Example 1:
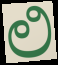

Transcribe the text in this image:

ಲಿ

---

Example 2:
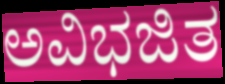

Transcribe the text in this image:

ಅವಿಭಜಿತ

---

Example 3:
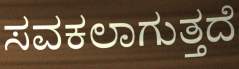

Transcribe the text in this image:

ಸವಕಲಾಗುತ್ತದೆ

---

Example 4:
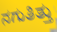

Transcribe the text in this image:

ನಗುತಿತ್ತು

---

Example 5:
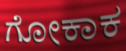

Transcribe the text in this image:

ಗೋಕಾಕ